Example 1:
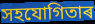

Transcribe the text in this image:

সহযোগিতাৰ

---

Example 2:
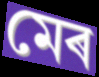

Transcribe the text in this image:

মেৰ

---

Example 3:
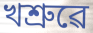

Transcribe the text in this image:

খশ্ৰুৱে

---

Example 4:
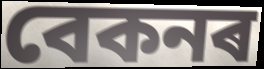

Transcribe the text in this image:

বেকনৰ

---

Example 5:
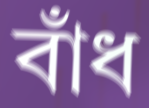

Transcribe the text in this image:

বাঁধ